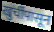
खुर्चीपासून